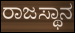
ರಾಜಸ್ಥಾನ